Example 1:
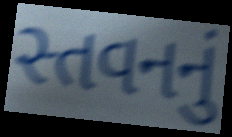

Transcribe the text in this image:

સ્તવનનું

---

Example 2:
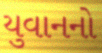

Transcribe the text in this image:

યુવાનનો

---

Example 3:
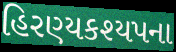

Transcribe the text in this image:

હિરણ્યકશ્યપના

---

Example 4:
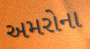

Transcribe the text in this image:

અમરોના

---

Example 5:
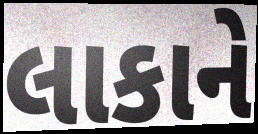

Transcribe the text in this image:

લાકાને